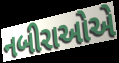
નબીરાઓએ